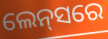
ଲେନ୍‌ସରେ